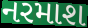
નરમાશ